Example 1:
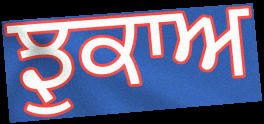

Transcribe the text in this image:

ਝੁਕਾਅ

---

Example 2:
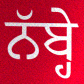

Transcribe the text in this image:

ਨੱਬ੍ਹੇ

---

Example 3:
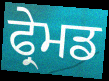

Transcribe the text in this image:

ਫ੍ਰੇਮਡ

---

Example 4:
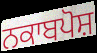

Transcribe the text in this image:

ਨਕਾਬਪੋਸ਼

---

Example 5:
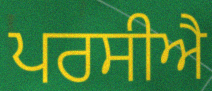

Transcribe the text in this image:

ਪਰਸੀਐ